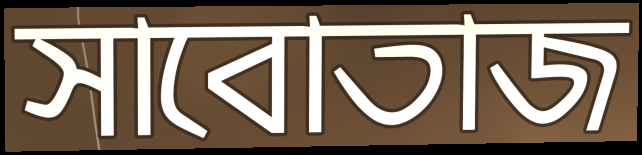
সাবোতাজ